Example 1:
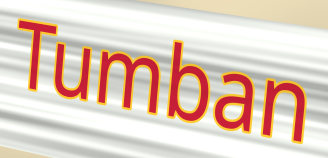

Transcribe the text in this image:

Tumban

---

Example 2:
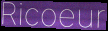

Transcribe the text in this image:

Ricoeur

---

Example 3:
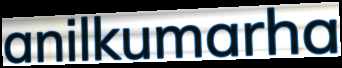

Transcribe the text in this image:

anilkumarha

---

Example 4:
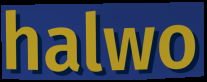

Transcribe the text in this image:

halwo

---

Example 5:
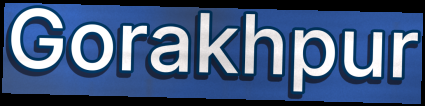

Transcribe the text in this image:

Gorakhpur